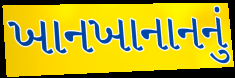
ખાનખાનાનનું